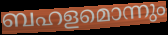
ബഹളമൊന്നും